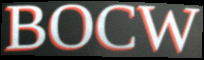
BOCW